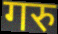
गरु